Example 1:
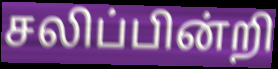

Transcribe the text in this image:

சலிப்பின்றி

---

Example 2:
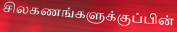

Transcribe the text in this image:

சிலகணங்களுக்குப்பின்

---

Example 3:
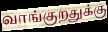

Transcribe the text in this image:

வாங்குறதுக்கு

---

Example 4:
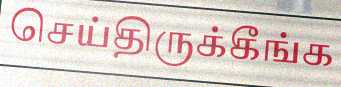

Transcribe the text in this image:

செய்திருக்கீங்க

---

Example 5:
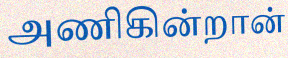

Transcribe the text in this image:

அணிகின்றான்